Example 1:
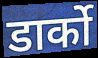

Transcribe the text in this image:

डार्को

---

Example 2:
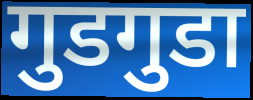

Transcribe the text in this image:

गुडगुडा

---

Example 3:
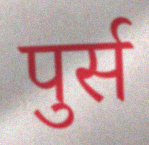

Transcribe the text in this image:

पुर्स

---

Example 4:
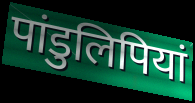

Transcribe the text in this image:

पांडुलिपियां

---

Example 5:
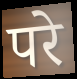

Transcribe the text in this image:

परे